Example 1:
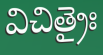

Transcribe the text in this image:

విచిత్రైః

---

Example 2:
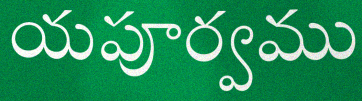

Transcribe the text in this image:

యపూర్వము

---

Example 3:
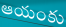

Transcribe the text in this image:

ఆయంకు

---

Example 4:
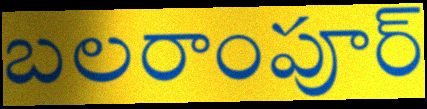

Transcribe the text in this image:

బలరాంపూర్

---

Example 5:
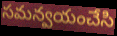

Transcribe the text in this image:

సమన్వయంచేసి